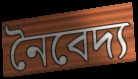
নৈবেদ্য